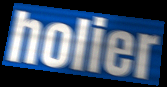
holier